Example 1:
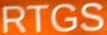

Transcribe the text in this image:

RTGS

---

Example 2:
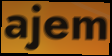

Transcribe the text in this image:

ajem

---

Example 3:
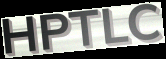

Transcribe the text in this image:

HPTLC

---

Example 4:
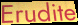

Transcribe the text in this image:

Erudite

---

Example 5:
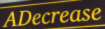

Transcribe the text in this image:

ADecrease